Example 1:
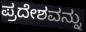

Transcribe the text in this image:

ಪ್ರದೇಶವನ್ನು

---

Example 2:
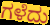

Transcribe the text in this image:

ಗಳೆದು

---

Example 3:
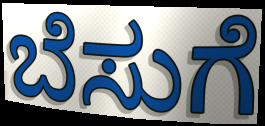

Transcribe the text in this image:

ಬೆಸುಗೆ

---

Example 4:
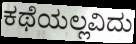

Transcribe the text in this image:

ಕಥೆಯಲ್ಲವಿದು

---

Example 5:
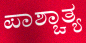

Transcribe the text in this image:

ಪಾಶ್ಚಾತ್ಯ